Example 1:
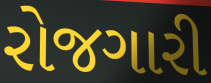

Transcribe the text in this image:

રોજગારી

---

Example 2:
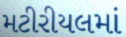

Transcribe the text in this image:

મટીરીયલમાં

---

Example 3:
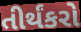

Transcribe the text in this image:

તીર્થંકરો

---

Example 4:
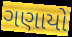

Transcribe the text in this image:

ગણાયો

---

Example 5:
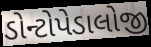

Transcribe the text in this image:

ડોન્ટોપેડાલોજી